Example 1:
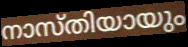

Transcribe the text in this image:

നാസ്തിയായും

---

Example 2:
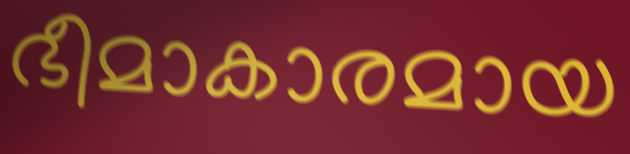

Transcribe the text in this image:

ഭീമാകാരമായ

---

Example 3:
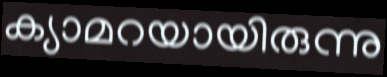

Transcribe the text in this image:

ക്യാമറയായിരുന്നു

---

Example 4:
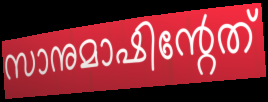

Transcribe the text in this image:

സാനുമാഷിന്റേത്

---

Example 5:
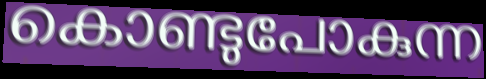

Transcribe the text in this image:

കൊണ്ടുപോകുന്ന